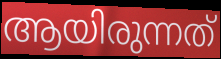
ആയിരുന്നത്